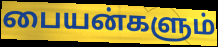
பையன்களும்